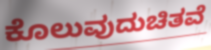
ಕೊಲುವುದುಚಿತವೆ